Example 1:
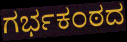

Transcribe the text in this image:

ಗರ್ಭಕಂಠದ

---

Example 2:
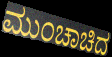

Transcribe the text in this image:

ಮುಂಚಾಚಿದ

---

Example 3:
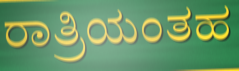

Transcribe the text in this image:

ರಾತ್ರಿಯಂತಹ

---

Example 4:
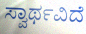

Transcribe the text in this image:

ಸ್ವಾರ್ಥವಿದೆ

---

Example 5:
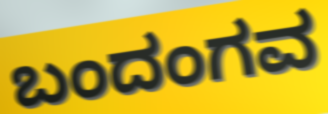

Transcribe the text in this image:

ಬಂದಂಗವ